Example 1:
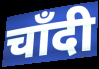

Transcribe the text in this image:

चाँदी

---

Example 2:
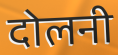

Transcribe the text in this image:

दोलनी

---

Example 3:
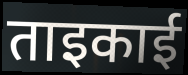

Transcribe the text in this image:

ताइकाई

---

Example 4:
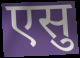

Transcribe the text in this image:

एसु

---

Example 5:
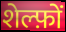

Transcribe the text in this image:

शेल्फ़ों